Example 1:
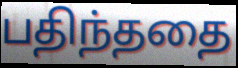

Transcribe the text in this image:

பதிந்ததை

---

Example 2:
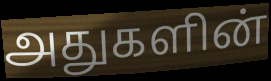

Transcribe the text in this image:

அதுகளின்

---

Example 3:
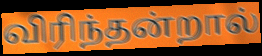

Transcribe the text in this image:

விரிந்தன்றால்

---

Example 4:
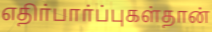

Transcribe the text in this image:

எதிர்பார்ப்புகள்தான்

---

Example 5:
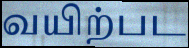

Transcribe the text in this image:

வயிற்பட